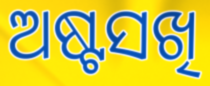
ଅଷ୍ଟସଖି